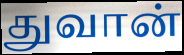
துவான்